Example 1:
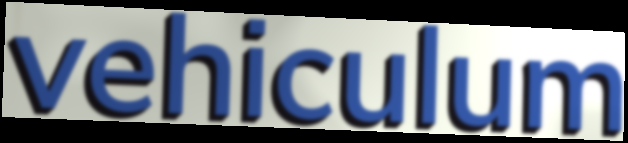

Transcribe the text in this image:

vehiculum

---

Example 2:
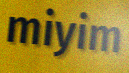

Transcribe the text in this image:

miyim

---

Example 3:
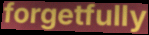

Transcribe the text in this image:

forgetfully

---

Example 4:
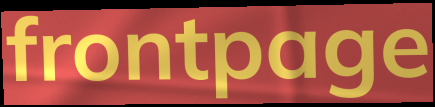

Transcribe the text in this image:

frontpage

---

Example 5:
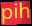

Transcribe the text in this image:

pih